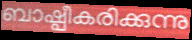
ബാഷ്പീകരിക്കുന്നു